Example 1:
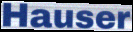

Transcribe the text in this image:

Hauser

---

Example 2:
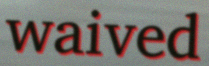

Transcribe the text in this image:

waived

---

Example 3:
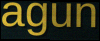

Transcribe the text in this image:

agun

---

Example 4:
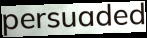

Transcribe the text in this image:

persuaded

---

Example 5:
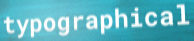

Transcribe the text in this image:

typographical